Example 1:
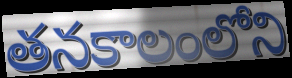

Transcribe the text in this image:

తనకాలంలోని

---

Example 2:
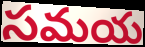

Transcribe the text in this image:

సమయ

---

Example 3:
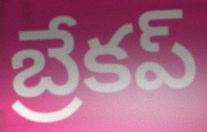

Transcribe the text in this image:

బ్రేకప్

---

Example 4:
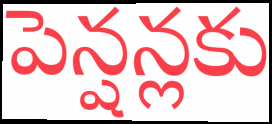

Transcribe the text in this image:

పెన్షన్లకు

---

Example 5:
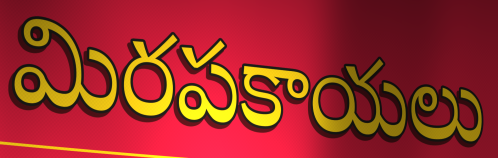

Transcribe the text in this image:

మిరపకాయలు